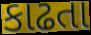
કાઢતા